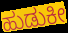
ಹುಡುಕೀ